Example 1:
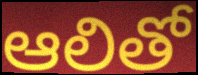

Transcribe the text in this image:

ఆలితో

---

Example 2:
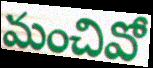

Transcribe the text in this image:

మంచివో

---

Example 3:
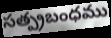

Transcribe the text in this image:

సత్ప్రబంధము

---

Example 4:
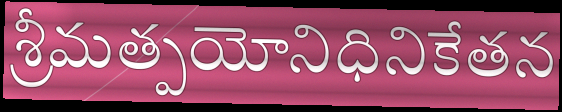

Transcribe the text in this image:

శ్రీమత్పయోనిధినికేతన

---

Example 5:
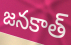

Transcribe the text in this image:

జనకాత్